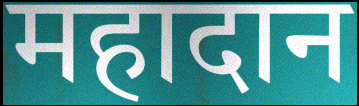
महादान